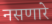
नसणारे